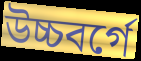
উচ্চবর্গে